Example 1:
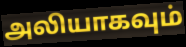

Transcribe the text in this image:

அலியாகவும்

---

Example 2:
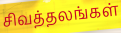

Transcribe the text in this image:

சிவத்தலங்கள்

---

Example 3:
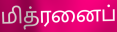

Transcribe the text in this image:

மித்ரனைப்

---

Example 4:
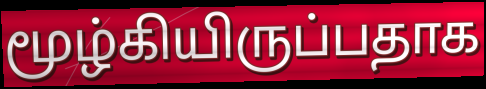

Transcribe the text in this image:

மூழ்கியிருப்பதாக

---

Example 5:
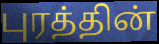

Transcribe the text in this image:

புரத்தின்